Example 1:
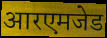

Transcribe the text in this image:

आरएमजेड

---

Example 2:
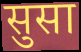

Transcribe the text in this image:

सुसा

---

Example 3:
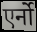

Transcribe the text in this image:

एर्नो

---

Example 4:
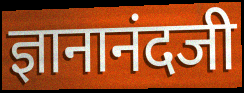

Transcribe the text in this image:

ज्ञानानंदजी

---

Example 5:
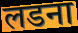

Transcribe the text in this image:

लडना